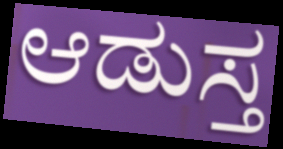
ಆಡುಸ್ತ